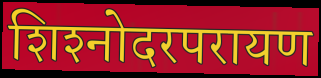
शिश्नोदरपरायण